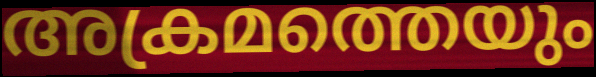
അക്രമത്തെയും